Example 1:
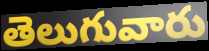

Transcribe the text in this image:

తెలుగువారు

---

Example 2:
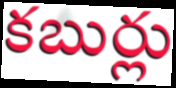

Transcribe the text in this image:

కబుర్లు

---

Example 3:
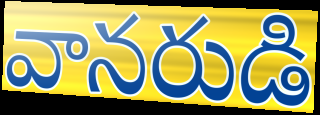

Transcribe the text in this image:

వానరుడి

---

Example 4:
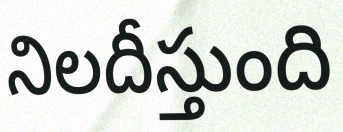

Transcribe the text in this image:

నిలదీస్తుంది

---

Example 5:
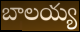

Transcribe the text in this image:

బాలయ్య